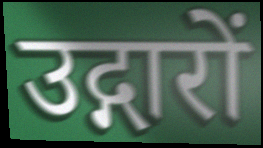
उद्गारों